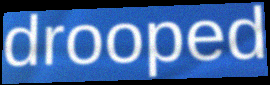
drooped